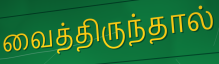
வைத்திருந்தால்